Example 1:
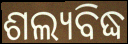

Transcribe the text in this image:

ଶଲ୍ୟବିଦ୍ଧ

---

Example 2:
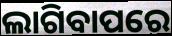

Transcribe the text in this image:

ଲାଗିବାପରେ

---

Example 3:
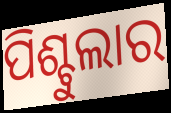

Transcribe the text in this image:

ପିଶ୍ଚୁଲାର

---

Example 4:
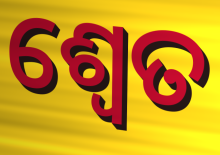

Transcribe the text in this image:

ଶ୍ଵେତ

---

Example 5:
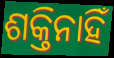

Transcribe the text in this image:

ଶକ୍ତିନାହିଁ